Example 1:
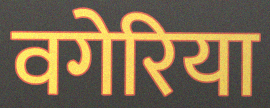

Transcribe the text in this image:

वगेरिया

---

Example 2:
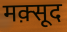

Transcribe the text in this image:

मक़्सूद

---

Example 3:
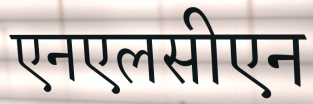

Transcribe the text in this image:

एनएलसीएन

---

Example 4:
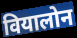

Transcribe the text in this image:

वियालोन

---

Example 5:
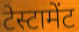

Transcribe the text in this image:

टेस्टामेंट